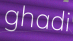
ghadi